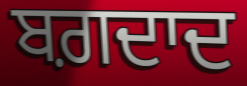
ਬ਼ਗਦਾਦ